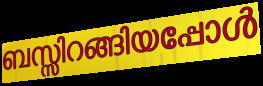
ബസ്സിറങ്ങിയപ്പോൾ